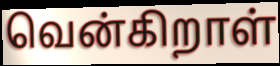
வென்கிறாள்